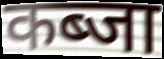
कब्जा